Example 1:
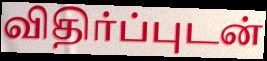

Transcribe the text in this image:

விதிர்ப்புடன்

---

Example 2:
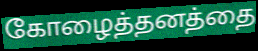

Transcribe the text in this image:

கோழைத்தனத்தை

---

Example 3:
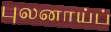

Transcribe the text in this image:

புலனாய்ப்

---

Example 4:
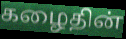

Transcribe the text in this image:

கழைதின்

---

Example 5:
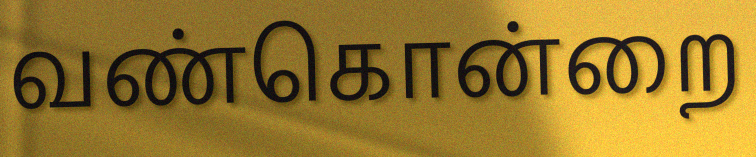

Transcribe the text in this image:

வண்கொன்றை